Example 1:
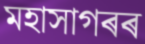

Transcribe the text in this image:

মহাসাগৰৰ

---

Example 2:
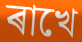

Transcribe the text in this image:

ৰাখে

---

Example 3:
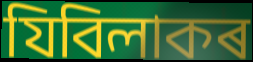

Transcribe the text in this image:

যিবিলাকৰ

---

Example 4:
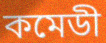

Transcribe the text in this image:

কমেডী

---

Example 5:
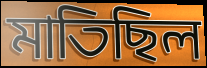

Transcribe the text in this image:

মাতিছিল